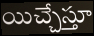
యిచ్చేస్తూ